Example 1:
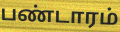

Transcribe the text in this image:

பண்டாரம்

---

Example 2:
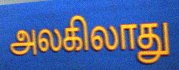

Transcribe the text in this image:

அலகிலாது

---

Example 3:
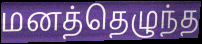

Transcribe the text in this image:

மனத்தெழுந்த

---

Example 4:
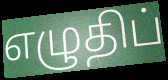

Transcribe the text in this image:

எழுதிப்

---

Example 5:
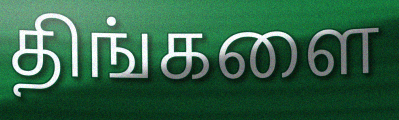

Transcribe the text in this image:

திங்களை